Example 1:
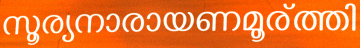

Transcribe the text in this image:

സൂര്യനാരായണമൂര്ത്തി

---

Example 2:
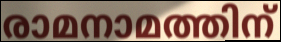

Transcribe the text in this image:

രാമനാമത്തിന്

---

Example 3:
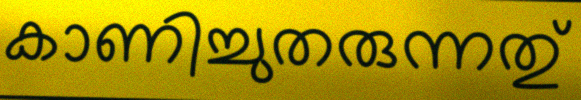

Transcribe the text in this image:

കാണിച്ചുതരുന്നതു്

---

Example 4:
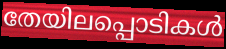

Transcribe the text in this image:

തേയിലപ്പൊടികൾ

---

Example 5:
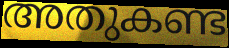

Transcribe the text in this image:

അതുകണ്ട